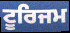
ਟੂਰਿਜਮ